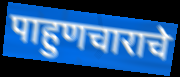
पाहुणचाराचे